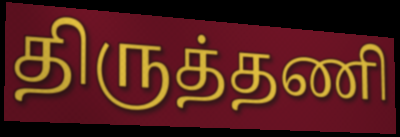
திருத்தணி